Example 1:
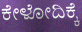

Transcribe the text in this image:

ಕೇಳೋದಿಕ್ಕೆ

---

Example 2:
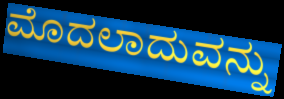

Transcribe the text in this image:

ಮೊದಲಾದುವನ್ನು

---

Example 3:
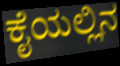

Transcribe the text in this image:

ಕೈಯಲ್ಲಿನ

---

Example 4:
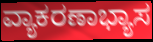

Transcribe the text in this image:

ವ್ಯಾಕರಣಾಭ್ಯಾಸ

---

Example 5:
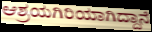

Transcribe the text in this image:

ಆಶ್ರಯಗಿರಿಯಾಗಿದ್ದಾನೆ